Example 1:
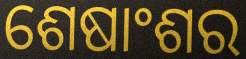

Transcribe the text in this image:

ଶେଷାଂଶର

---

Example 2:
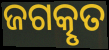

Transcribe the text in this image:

ଜଗତ୍କୃତ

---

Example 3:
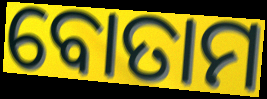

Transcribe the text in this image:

ବୋତାମ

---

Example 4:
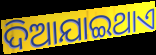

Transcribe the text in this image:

ଦିଆଯାଇଥାଏ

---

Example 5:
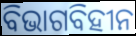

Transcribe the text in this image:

ବିଭାଗବିହୀନ